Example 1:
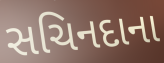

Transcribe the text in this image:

સચિનદાના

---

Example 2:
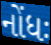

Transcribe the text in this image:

નોંધઃ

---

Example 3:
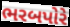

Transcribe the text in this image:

ભરબપોરે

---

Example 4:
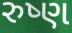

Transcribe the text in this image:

રુષ્ણ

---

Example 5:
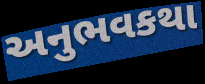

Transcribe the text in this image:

અનુભવકથા